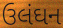
ઉલંઘન